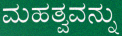
ಮಹತ್ವವನ್ನು